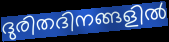
ദുരിതദിനങ്ങളിൽ